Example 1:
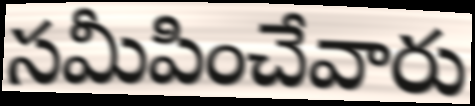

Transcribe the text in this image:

సమీపించేవారు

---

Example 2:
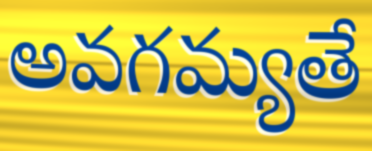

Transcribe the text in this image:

అవగమ్యతే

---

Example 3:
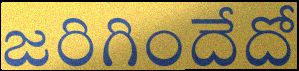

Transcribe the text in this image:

జరిగిందేదో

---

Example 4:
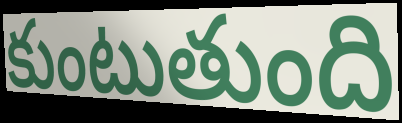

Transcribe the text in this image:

కుంటుతుంది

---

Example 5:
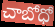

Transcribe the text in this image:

చాబోధో